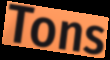
Tons